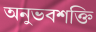
অনুভবশক্তি